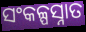
ସଂକଳ୍ପସ୍ନାତ